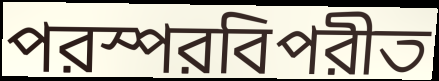
পরস্পরবিপরীত